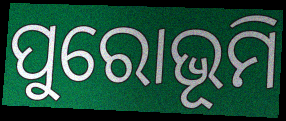
ପୁରୋଭୂମି